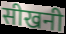
सीखनी